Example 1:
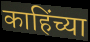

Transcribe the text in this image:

काहिंच्या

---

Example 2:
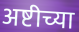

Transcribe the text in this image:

अष्टीच्या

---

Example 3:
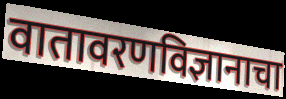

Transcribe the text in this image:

वातावरणविज्ञानाचा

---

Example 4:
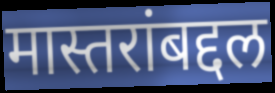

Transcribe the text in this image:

मास्तरांबद्दल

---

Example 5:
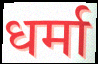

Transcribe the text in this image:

धर्मा